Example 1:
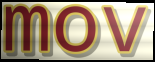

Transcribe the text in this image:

mov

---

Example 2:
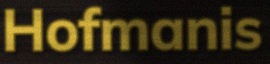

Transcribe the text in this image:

Hofmanis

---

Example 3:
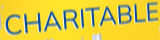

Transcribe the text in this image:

CHARITABLE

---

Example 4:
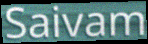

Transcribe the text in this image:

Saivam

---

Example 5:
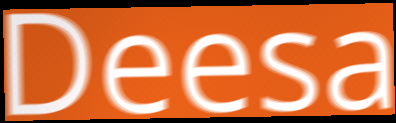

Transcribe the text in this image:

Deesa